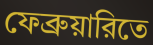
ফেব্রুয়ারিতে